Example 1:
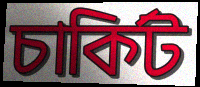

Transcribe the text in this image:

চাৰ্কিট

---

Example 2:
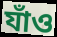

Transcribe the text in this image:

যাঁও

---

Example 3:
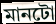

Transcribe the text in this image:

মানটো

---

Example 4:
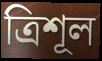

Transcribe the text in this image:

ত্ৰিশূল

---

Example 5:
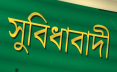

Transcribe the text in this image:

সুবিধাবাদী